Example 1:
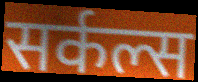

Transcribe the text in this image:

सर्कल्स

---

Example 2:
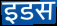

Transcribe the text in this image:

इडस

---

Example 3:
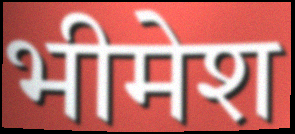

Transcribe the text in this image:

भीमेश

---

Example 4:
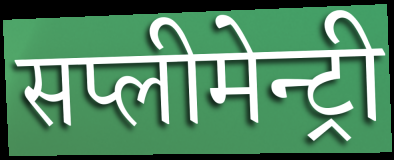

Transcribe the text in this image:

सप्लीमेन्ट्री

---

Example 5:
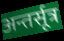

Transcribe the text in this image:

अन्तर्सूत्र